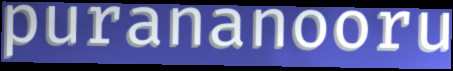
purananooru